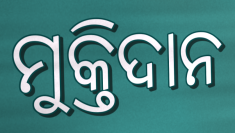
ମୁକ୍ତିଦାନ